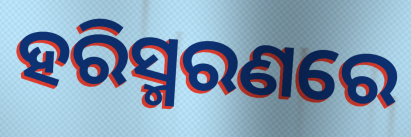
ହରିସ୍ମରଣରେ